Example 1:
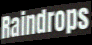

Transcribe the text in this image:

Raindrops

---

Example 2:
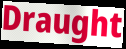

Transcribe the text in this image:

Draught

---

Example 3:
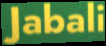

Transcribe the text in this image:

Jabali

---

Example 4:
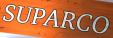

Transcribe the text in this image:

SUPARCO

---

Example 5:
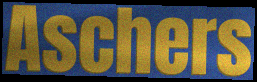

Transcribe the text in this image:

Aschers